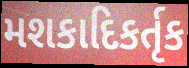
મશકાદિકર્તૃક